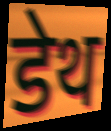
डेथ